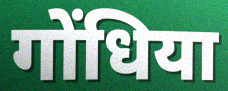
गोंधिया